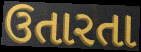
ઉતારતા